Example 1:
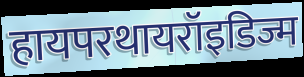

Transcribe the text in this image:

हायपरथायरॉइडिज्म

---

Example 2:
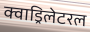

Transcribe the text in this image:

क्वाड्रिलेटरल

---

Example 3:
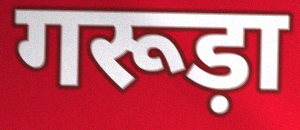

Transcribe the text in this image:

गरूड़ा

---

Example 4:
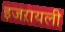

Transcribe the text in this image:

इजऱायली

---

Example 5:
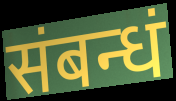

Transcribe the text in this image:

संबन्धं